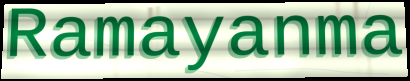
Ramayanma